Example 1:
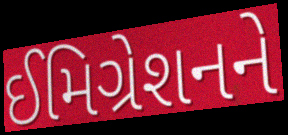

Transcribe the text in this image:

ઈમિગ્રેશનને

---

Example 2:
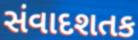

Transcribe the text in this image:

સંવાદશતક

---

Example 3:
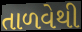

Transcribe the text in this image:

તાળવેથી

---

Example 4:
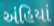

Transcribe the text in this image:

અંહિયાં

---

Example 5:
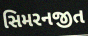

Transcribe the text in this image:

સિમરનજીત